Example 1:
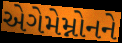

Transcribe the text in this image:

એગેમેમ્નોનને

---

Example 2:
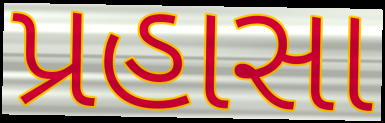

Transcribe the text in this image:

પ્રહાસા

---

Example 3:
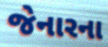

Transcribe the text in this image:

જેનારના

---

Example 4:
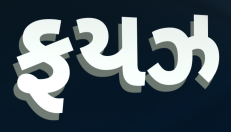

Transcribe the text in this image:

ફયઝ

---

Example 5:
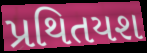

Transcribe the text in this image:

પ્રથિતયશ